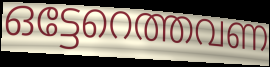
ഒട്ടേറെത്തവണ